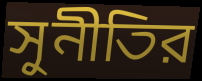
সুনীতির